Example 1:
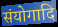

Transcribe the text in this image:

संयोगादि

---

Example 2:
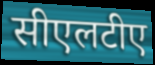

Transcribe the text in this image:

सीएलटीए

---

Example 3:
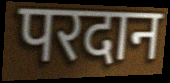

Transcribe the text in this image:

परदान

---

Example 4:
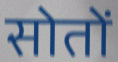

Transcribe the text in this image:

सोतों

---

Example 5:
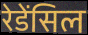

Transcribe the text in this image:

रेडेंसिल